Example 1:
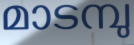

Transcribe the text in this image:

മാടമ്പു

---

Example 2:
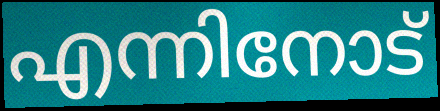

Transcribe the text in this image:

എന്നിനോട്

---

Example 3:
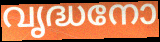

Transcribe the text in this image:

വൃദ്ധനോ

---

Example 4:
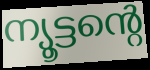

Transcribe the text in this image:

ന്യൂട്ടന്റെ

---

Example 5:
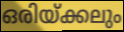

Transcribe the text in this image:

ഒരിയ്ക്കലും